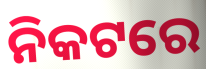
ନିକଟରେ